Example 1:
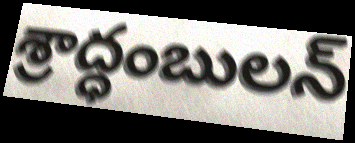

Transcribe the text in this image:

శ్రాద్ధంబులన్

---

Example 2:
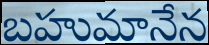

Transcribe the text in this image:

బహుమానేన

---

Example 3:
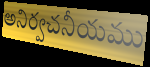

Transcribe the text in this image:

అనిర్వచనీయము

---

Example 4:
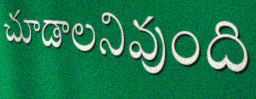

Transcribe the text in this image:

చూడాలనివుంది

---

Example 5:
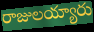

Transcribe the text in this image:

రాజులయ్యారు